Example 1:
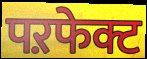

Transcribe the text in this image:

पऱफेक्ट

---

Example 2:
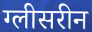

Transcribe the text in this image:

ग्लीसरीन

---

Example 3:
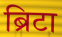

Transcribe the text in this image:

ब्रिटा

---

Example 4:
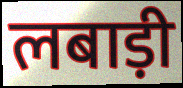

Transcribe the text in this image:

लबाड़ी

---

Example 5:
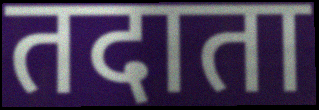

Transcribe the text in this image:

तदाता